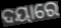
ଦୟାରେ